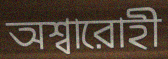
অশ্বারোহী